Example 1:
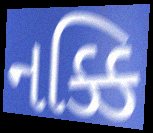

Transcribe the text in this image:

નક્કિ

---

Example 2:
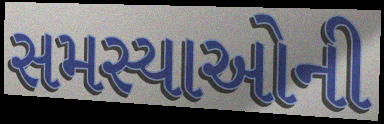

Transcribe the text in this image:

સમસ્યાઓની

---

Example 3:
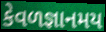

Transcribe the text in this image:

કેવળજ્ઞાનમય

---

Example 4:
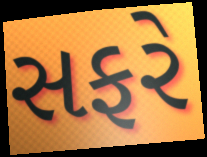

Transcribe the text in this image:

સફરે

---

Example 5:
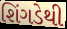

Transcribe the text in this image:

શિંગડેથી